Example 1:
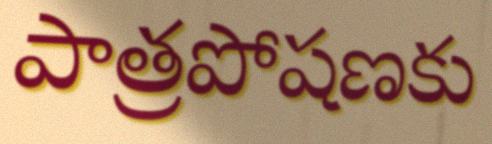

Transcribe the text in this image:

పాత్రపోషణకు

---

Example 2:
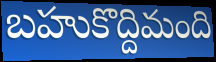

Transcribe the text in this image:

బహుకొద్దిమంది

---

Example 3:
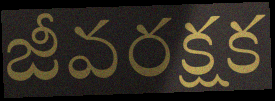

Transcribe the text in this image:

జీవరక్షక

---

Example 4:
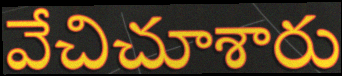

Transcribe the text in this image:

వేచిచూశారు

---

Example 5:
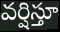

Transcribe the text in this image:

వర్షిస్తూ